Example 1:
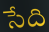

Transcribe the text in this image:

సేది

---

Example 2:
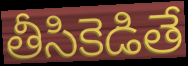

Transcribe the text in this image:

తీసికెడితే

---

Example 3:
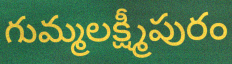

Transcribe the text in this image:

గుమ్మలక్ష్మీపురం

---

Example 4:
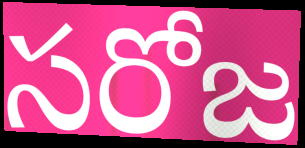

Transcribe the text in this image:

సరోజ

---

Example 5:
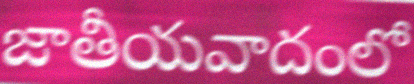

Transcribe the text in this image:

జాతీయవాదంలో